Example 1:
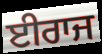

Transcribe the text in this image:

ਈਰਾਜ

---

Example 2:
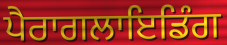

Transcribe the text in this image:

ਪੈਰਾਗਲਾਇਡਿੰਗ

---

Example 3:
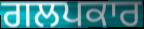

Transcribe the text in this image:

ਗਲਪਕਾਰ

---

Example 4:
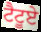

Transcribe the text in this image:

ਟੈਟੂਏ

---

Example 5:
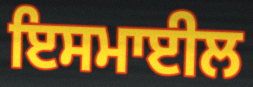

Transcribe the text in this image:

ਇਸਮਾਈਲ